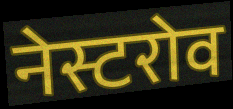
नेस्टरोव